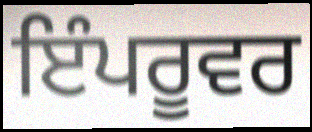
ਇੰਪਰੂਵਰ